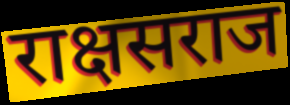
राक्षसराज